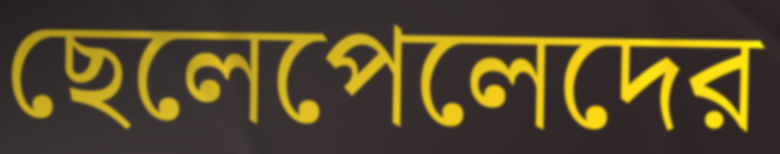
ছেলেপেলেদের